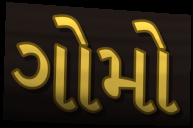
ગોમો